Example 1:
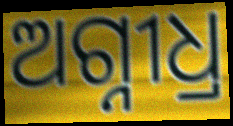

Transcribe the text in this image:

ଅଗ୍ନୀଧ୍ର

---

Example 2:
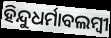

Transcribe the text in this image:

ହିନ୍ଦୁଧର୍ମାବଲମ୍ବୀ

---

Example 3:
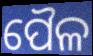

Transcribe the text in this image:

ପୈଳ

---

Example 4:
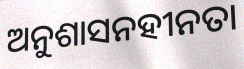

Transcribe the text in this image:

ଅନୁଶାସନହୀନତା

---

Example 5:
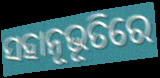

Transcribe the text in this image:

ସହାନୂଭୂତିରେ